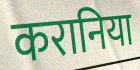
करानिया